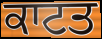
ਕਾਟਤ